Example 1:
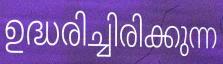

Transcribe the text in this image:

ഉദ്ധരിച്ചിരിക്കുന്ന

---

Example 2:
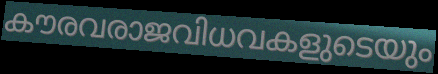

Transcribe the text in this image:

കൗരവരാജവിധവകളുടെയും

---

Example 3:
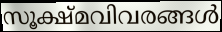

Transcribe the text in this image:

സൂക്ഷ്മവിവരങ്ങൾ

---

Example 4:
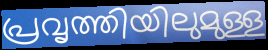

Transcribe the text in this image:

പ്രവൃത്തിയിലുമുള്ള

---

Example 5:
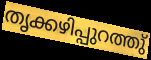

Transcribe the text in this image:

തൃക്കഴിപ്പുറത്തു്